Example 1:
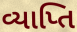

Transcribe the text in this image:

વ્યાપ્તિ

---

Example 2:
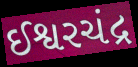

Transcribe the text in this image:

ઈશ્વરચંદ્ર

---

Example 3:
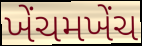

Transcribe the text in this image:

ખેંચમખેંચ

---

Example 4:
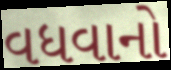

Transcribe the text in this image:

વધવાનો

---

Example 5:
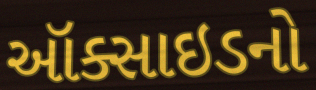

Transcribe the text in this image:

ઑક્સાઇડનો